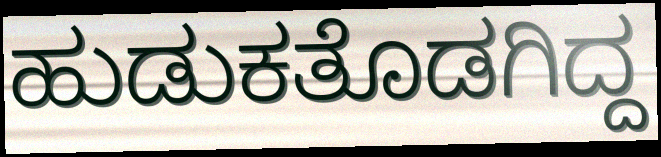
ಹುಡುಕತೊಡಗಿದ್ದ